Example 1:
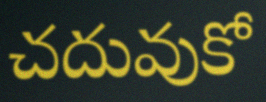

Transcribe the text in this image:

చదువుకో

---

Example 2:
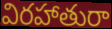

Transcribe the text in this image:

విరహాతురా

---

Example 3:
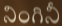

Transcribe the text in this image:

నింగినీ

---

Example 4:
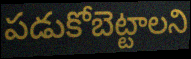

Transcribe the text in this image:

పడుకోబెట్టాలని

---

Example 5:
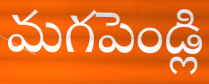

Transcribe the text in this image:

మగపెండ్లి